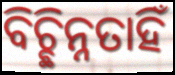
ବିଚ୍ଛିନ୍ନତାହିଁ